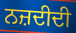
ਨਜ਼ਦੀਦੀ